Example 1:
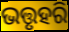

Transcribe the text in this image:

ଭତ୍ତୃହରି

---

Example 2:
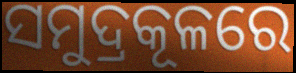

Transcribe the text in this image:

ସମୁଦ୍ରକୂଳରେ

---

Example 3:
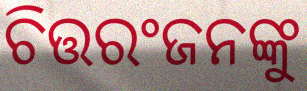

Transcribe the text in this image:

ଚିତ୍ତରଂଜନଙ୍କୁ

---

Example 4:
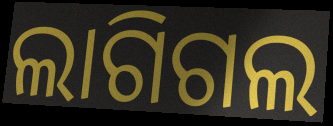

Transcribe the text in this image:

ଲାଗିଗଲ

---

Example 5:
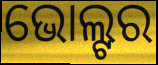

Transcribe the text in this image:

ଭୋଲ୍ଟର